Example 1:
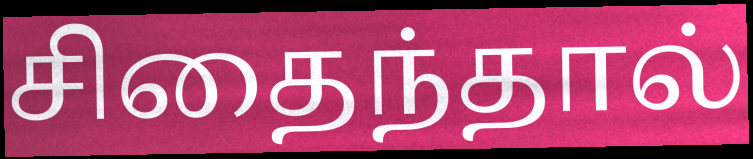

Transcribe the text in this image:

சிதைந்தால்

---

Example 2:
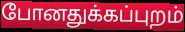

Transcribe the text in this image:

போனதுக்கப்புறம்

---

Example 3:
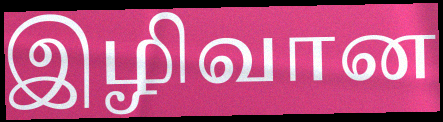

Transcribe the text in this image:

இழிவான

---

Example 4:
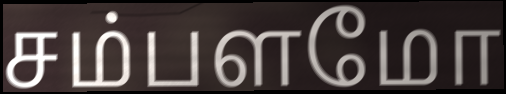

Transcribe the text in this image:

சம்பளமோ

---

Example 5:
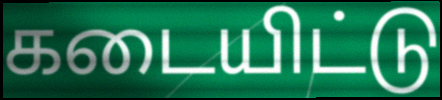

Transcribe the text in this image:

கடையிட்டு